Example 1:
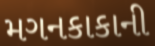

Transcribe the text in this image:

મગનકાકાની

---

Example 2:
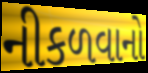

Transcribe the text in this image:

નીકળવાનો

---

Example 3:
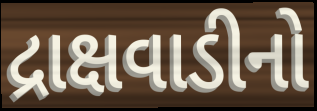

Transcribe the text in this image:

દ્રાક્ષવાડીનો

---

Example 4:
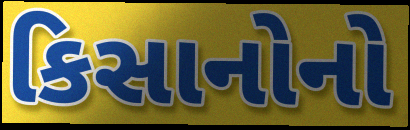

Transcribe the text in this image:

કિસાનોનો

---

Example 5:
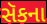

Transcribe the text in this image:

સૅકના